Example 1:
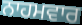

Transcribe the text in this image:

ਨਾਹਮਵਾਰ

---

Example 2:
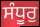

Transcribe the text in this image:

ਸੰਧੂਰੁ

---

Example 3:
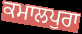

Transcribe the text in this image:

ਕਮਾਲਪੁਰਾ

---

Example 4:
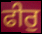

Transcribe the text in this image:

ਫੀਰੁ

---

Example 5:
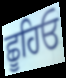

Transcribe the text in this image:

ਛੂਹਿਓ